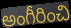
అంగీరించి